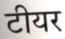
टीयर